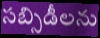
సబ్సిడీలను